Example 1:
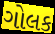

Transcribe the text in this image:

ગોલક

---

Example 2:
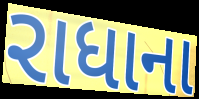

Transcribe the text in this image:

રાધાના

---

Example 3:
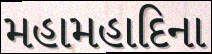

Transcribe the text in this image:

મહામહાદિના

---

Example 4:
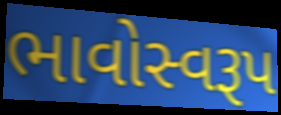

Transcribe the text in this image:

ભાવોસ્વરૂપ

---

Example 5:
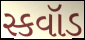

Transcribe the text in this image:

સ્કવૉડ